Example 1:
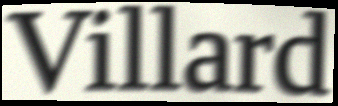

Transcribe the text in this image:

Villard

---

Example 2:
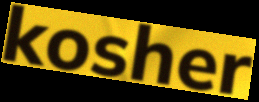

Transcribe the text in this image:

kosher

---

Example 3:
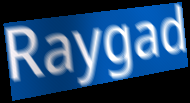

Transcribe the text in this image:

Raygad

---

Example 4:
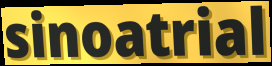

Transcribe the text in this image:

sinoatrial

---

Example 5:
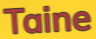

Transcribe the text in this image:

Taine